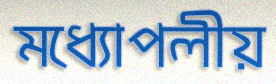
মধ্যোপলীয়